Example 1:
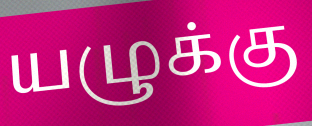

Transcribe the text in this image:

யழுக்கு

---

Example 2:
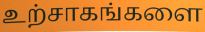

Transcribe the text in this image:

உற்சாகங்களை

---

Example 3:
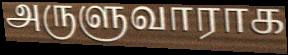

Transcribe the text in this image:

அருளுவாராக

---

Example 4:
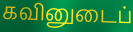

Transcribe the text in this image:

கவினுடைப்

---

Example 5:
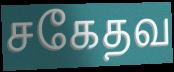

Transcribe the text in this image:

சகேதவ